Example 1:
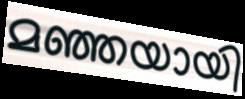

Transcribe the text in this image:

മഞ്ഞയായി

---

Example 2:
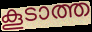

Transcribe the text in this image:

കൂടാത്ത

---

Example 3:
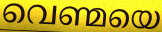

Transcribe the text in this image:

വെണ്മയെ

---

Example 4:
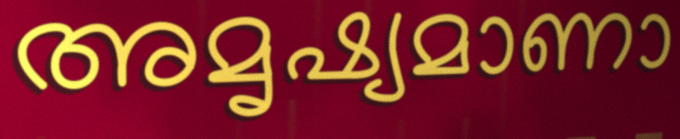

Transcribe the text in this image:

അമൃഷ്യമാണാ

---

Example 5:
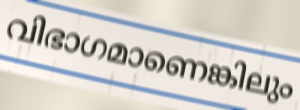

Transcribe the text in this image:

വിഭാഗമാണെങ്കിലും